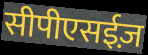
सीपीएसईज़